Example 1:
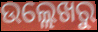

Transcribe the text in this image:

ଉଲ୍ଲେଖରୁ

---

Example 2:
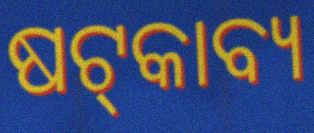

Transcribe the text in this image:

ଷଟ୍‌କାବ୍ୟ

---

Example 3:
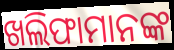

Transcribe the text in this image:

ଖଲିଫାମାନଙ୍କ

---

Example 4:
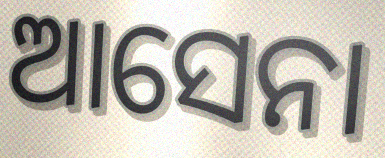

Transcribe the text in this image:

ଆସେନା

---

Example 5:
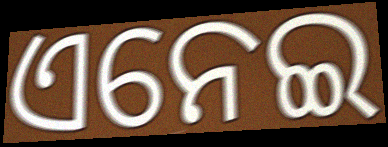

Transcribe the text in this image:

ଏନେଇ